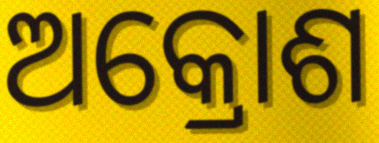
ଅକ୍ରୋଶ